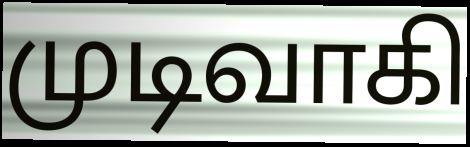
முடிவாகி